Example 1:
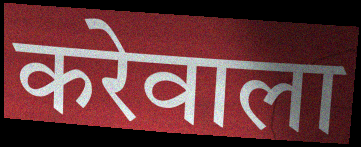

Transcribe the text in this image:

करेवाला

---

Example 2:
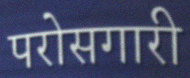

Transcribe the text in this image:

परोसगारी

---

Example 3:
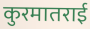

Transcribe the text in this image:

कुरमातराई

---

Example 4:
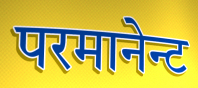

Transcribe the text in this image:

परमानेन्ट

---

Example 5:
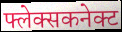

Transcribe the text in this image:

फ्लेक्सकनेक्ट